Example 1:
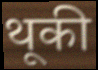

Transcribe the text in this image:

थूकी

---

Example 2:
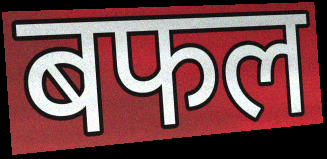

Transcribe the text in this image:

बफल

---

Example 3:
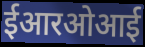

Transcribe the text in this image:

ईआरओआई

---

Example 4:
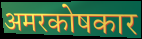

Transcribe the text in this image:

अमरकोषकार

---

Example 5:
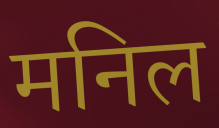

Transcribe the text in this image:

मनिल